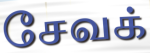
சேவக்